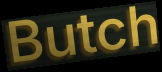
Butch